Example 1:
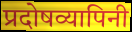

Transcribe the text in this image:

प्रदोषव्यापिनी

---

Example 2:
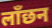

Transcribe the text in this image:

लाँछन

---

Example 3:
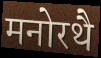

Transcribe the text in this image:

मनोरथै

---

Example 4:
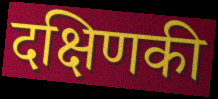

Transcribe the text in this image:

दक्षिणकी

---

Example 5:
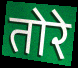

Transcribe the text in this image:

तोरे